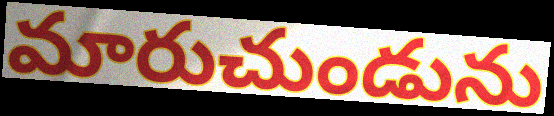
మారుచుండును